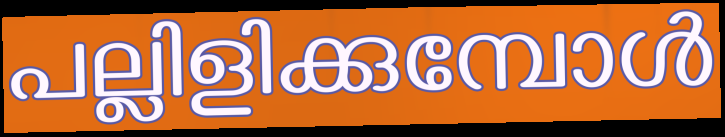
പല്ലിളിക്കുമ്പോൾ